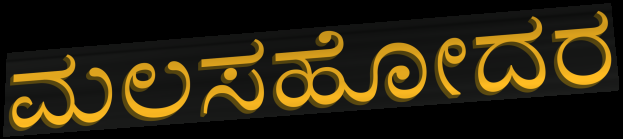
ಮಲಸಹೋದರ